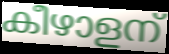
കീഴാളന്